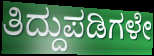
ತಿದ್ದುಪಡಿಗಳೇ